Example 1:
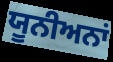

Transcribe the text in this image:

ਯੂਨੀਅਨਾਂ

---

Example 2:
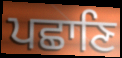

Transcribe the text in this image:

ਪਛਾਣਿ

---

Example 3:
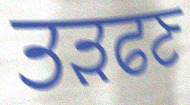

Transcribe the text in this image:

ਤੜਫਣ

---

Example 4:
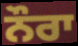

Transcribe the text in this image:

ਨੌਰਾ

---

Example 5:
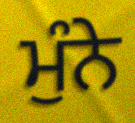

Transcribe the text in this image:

ਮੁੰਨੇ